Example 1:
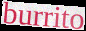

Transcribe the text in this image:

burrito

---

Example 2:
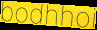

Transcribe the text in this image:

bodhhoi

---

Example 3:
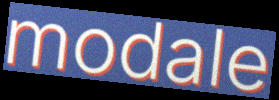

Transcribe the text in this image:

modale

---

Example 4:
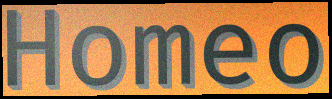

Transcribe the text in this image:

Homeo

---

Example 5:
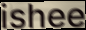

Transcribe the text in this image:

ishee